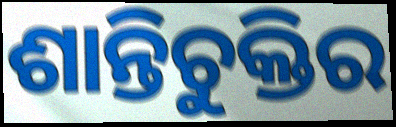
ଶାନ୍ତିଚୁକ୍ତିର